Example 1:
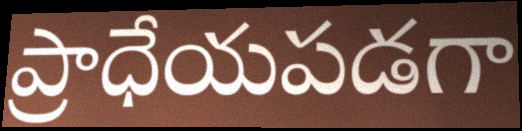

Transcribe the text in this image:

ప్రాధేయపడగా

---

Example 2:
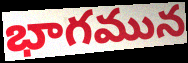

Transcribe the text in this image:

భాగమున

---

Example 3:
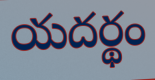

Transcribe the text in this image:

యదర్థం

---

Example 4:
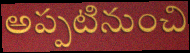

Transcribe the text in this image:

అప్పటినుంచి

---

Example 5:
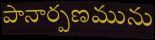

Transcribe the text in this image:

పానార్పణమును